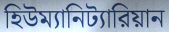
হিউম্যানিট্যারিয়ান